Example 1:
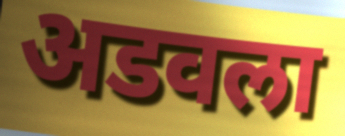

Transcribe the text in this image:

अडवला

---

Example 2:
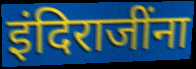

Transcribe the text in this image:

इंदिराजींना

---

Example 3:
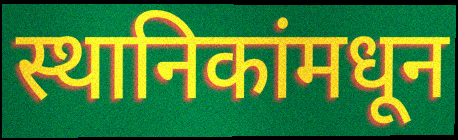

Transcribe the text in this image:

स्थानिकांमधून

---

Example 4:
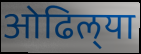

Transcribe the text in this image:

ओढिल्या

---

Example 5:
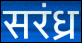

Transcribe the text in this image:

सरंध्र